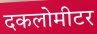
दकलोमीटर